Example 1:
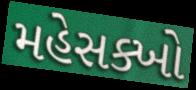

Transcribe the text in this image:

મહેસક્ખો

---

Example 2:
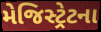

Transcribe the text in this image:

મેજિસ્ટ્રેટના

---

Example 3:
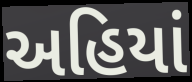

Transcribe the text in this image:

અહિયાં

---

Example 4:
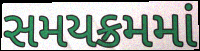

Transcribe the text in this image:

સમયક્રમમાં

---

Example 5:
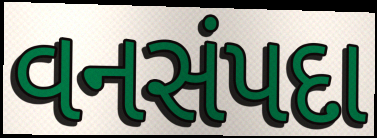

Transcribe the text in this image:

વનસંપદા